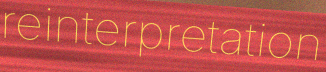
reinterpretation